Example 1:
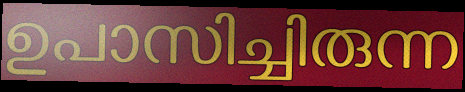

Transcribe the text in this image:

ഉപാസിച്ചിരുന്ന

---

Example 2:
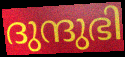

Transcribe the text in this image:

ദുന്ദുഭി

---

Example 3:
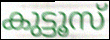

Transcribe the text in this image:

കുട്ടൂസ്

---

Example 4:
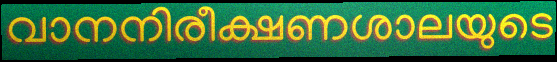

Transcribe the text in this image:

വാനനിരീക്ഷണശാലയുടെ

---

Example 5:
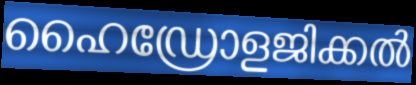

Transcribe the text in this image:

ഹൈഡ്രോളജിക്കൽ